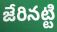
జేరినట్టి